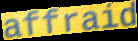
affraid